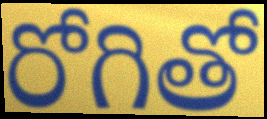
రోగితో